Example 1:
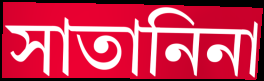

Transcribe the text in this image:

সাতানিনা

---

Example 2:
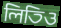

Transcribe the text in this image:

লিতিও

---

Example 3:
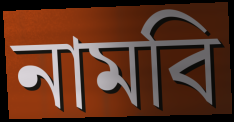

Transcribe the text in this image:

নামবি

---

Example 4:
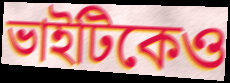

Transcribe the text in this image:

ভাইটিকেও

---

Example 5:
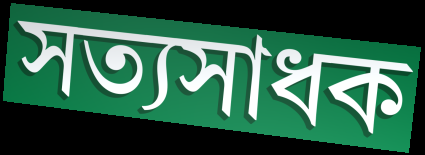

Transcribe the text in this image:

সত্যসাধক